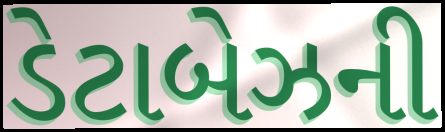
ડેટાબેઝની